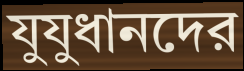
যুযুধানদের